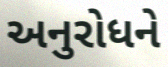
અનુરોધને